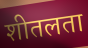
शीतलता